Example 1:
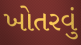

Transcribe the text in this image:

ખોતરવું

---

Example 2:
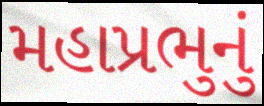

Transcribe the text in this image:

મહાપ્રભુનું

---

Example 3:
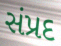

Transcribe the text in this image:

સંપ્રદ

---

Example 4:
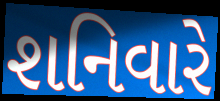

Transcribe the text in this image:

શનિવારે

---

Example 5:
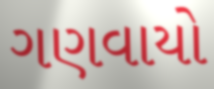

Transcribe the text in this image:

ગણવાયો